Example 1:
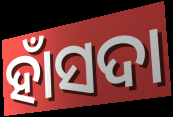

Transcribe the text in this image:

ହାଁସଦା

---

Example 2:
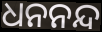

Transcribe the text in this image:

ଧନନନ୍ଦ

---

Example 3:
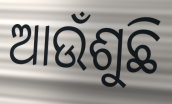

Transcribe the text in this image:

ଆଉଁଶୁଛି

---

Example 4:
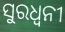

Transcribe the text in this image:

ସୁରଧ୍ୱନୀ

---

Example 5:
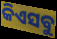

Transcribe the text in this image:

କିଏସବୁ